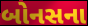
બોનસના